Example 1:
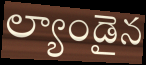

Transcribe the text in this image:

ల్యాండైన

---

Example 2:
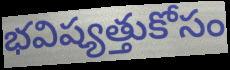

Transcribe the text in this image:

భవిష్యత్తుకోసం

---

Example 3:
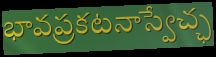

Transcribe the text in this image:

భావప్రకటనాస్వేచ్ఛ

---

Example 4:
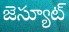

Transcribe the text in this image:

జెస్యూట్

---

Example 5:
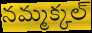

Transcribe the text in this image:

నమ్మక్కల్